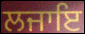
ਲਜਾਇ